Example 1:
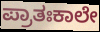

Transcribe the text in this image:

ಪ್ರಾತಃಕಾಲೇ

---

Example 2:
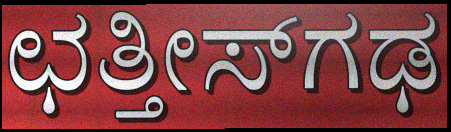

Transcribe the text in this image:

ಛತ್ತೀಸ್‌ಗಢ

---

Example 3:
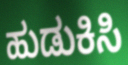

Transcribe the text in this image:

ಹುಡುಕಿಸಿ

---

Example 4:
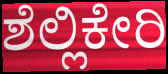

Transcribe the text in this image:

ಶೆಲ್ಲಿಕೇರಿ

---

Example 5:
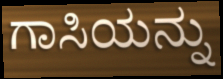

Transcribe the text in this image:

ಗಾಸಿಯನ್ನು